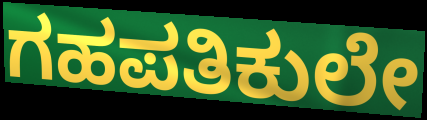
ಗಹಪತಿಕುಲೇ